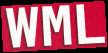
WML